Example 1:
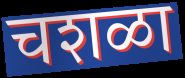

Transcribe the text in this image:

चशळा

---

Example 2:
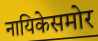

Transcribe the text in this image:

नायिकेसमोर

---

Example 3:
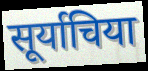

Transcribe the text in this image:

सूर्याचिया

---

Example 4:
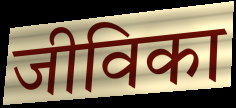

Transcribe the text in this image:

जीविका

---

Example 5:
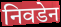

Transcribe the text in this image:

निवडेन